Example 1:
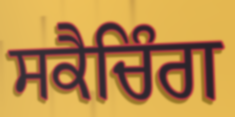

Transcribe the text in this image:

ਸਕੈਚਿੰਗ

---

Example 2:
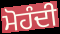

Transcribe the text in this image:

ਮੋਹੰਦੀ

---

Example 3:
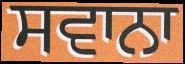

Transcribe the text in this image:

ਸਵਾਨਾ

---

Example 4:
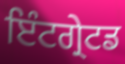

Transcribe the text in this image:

ਇੰਟਗ੍ਰੇਟਡ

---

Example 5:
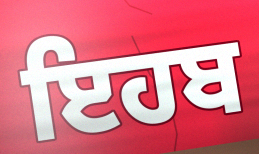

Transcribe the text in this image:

ਇਹਬ